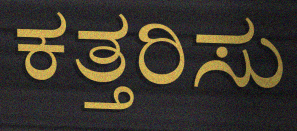
ಕತ್ತರಿಸು